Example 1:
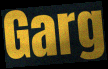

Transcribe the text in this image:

Garg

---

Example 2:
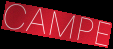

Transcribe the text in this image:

CAMPE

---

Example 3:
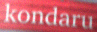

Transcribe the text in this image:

kondaru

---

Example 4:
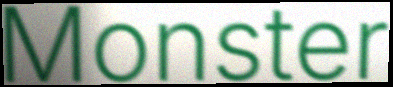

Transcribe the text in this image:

Monster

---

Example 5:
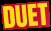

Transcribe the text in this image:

DUET